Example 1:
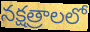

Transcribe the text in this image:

నక్షత్రాలలో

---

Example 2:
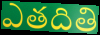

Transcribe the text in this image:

ఎతదితి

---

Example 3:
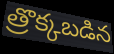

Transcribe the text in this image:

త్రొక్కబడిన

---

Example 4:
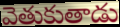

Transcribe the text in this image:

వెతుకుతాడు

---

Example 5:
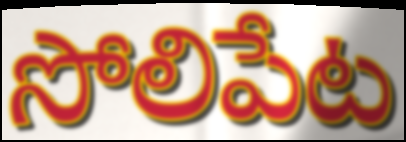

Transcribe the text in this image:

సోలిపేట